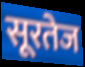
सूरतेज